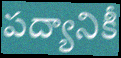
పద్యానికీ